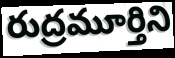
రుద్రమూర్తిని